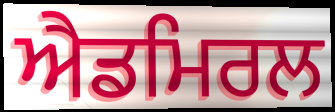
ਐਡਮਿਰਲ